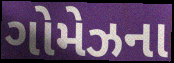
ગોમેઝના